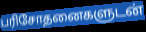
பரிசோதனைகளுடன்